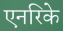
एनरिके